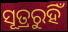
ସୂତ୍ରରୁହିଁ